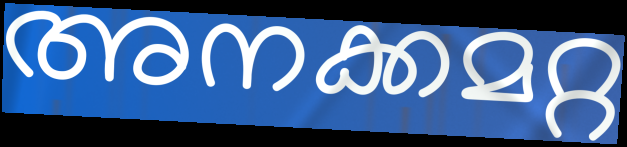
അനക്കമറ്റ